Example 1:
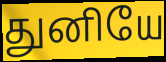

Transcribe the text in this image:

துனியே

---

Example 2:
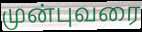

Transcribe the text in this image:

முன்புவரை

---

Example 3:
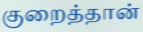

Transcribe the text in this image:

குறைத்தான்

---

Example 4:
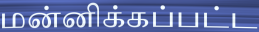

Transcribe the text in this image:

மன்னிக்கப்பட்ட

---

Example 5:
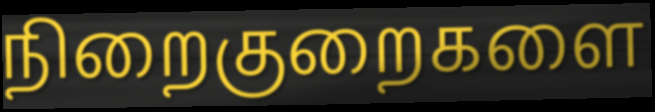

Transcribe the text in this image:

நிறைகுறைகளை